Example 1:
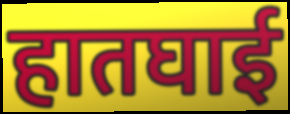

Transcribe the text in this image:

हातघाई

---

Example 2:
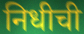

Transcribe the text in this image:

निधीची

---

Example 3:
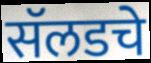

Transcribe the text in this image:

सॅलडचे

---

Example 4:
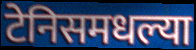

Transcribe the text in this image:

टेनिसमधल्या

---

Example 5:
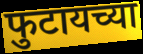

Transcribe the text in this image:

फुटायच्या